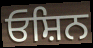
ਓਸ਼ਿਨ